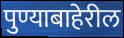
पुण्याबाहेरील